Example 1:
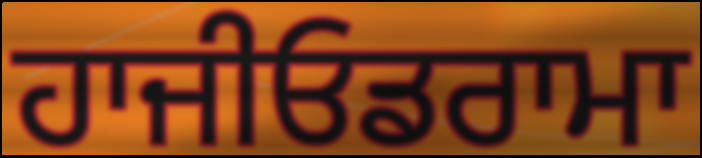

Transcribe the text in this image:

ਹਾਜੀਓਡਰਾਮਾ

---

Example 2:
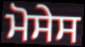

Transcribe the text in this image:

ਮੋਸੇਸ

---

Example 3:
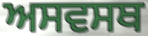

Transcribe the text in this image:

ਅਸਵਸਥ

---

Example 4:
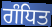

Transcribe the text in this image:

ਗੰਧਿਤ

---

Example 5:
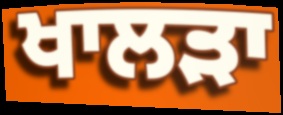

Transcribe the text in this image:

ਖਾਲੜਾ